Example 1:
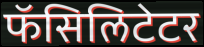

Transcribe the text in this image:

फॅसिलिटेटर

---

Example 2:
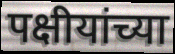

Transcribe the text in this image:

पक्षीयांच्या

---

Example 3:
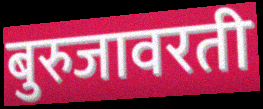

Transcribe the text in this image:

बुरुजावरती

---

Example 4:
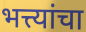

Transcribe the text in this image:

भत्त्यांचा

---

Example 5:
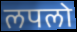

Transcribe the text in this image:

लपलो